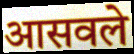
आसवले